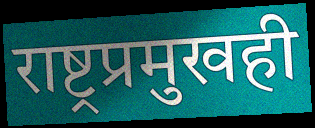
राष्ट्रप्रमुखही